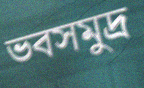
ভবসমুদ্র